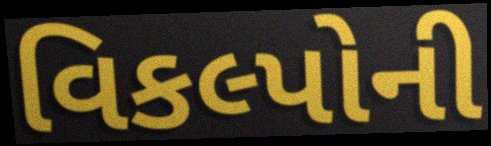
વિકલ્પોની